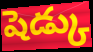
షెడ్కు